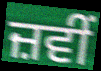
ਜ਼ਵੀਂ